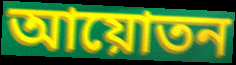
আয়োতন